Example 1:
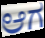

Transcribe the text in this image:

ಆಗ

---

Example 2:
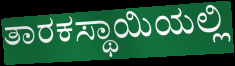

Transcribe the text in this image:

ತಾರಕಸ್ಥಾಯಿಯಲ್ಲಿ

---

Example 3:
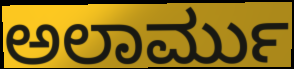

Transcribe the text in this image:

ಅಲಾರ್ಮು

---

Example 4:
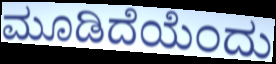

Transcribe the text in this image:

ಮೂಡಿದೆಯೆಂದು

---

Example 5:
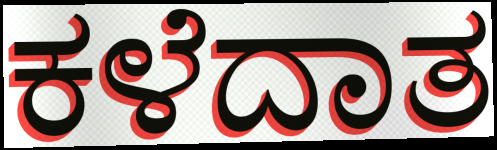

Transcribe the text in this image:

ಕಳೆದಾತ